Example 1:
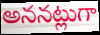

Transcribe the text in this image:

అననట్లుగా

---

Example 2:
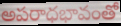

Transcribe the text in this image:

అపరాధభావంతో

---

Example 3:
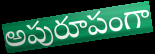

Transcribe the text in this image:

అపురూపంగా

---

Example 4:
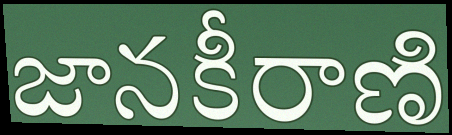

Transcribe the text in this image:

జానకీరాణి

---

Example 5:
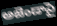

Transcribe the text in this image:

అజెండాపై